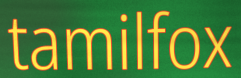
tamilfox